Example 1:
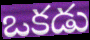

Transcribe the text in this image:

ఒకడు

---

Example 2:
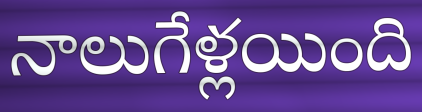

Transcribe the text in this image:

నాలుగేళ్లయింది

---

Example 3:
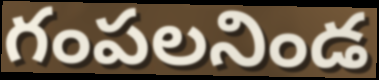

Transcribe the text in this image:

గంపలనిండ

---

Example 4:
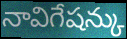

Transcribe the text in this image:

నావిగేషన్కు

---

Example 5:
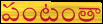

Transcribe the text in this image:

పంటంతా